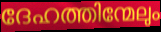
ദേഹത്തിന്മേലും